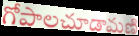
గోపాలచూడామణి